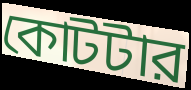
কোটটার